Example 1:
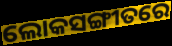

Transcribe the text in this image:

ଲୋକସଙ୍ଗୀତରେ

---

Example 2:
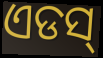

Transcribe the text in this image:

ଏଡସ୍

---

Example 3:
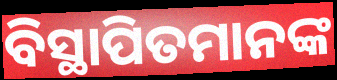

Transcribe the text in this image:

ବିସ୍ଥାପିତମାନଙ୍କ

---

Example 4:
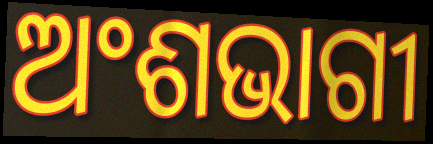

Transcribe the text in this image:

ଅଂଶଭାଗୀ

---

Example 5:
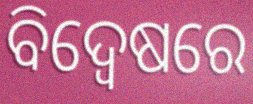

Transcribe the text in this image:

ବିଦ୍ଵେଷରେ